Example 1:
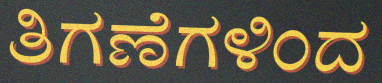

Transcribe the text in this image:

ತಿಗಣೆಗಳಿಂದ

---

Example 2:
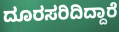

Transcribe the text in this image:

ದೂರಸರಿದಿದ್ದಾರೆ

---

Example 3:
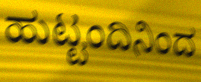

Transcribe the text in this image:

ಹುಟ್ಟಂದಿನಿಂದ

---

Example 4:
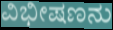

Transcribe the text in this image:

ವಿಭೀಷಣನು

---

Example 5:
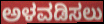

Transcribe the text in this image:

ಅಳವಡಿಸಲು